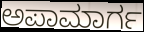
ಅಪಾಮಾರ್ಗ